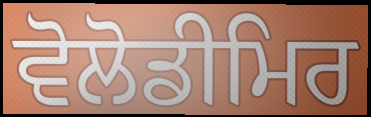
ਵੋਲੋਡੀਮਿਰ